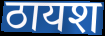
ठायश